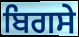
ਬਿਗਸੇ